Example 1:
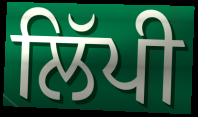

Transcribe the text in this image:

ਲਿੱਪੀ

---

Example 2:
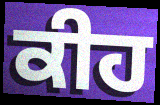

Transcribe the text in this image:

ਕੀਹ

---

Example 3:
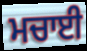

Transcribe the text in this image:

ਮਚਾਈ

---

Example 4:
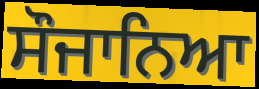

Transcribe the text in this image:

ਸੌਜਾਨਿਆ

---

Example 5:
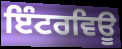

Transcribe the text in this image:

ਇੰਟਰਵਿਊ